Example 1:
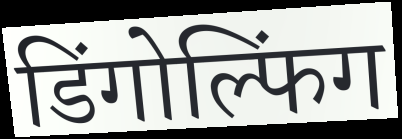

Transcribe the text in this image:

डिंगोल्फिंग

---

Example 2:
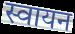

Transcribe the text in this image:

स्वायन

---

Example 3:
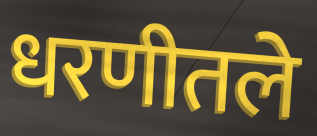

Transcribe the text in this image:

धरणीतले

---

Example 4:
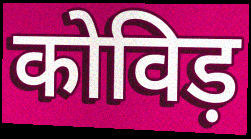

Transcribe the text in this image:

कोविड़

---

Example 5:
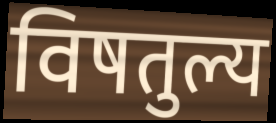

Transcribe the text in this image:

विषतुल्य